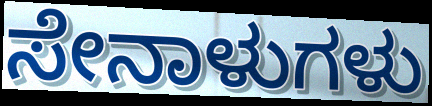
ಸೇನಾಳುಗಳು